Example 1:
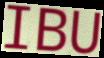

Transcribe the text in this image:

IBU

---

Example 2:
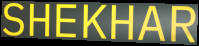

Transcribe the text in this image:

SHEKHAR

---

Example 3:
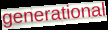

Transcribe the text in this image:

generational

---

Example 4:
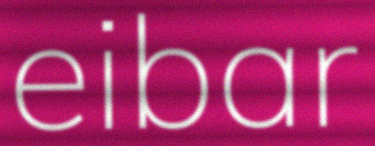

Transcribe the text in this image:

eibar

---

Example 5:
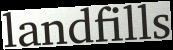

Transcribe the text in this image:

landfills